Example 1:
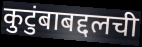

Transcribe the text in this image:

कुटुंबाबद्दलची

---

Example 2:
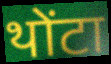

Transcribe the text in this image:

थोंटा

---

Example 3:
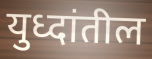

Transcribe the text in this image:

युध्दांतील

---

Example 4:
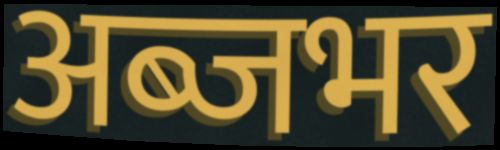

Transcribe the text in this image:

अब्जभर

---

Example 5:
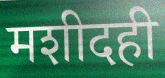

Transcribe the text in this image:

मशीदही